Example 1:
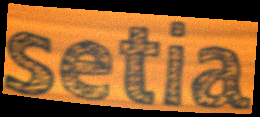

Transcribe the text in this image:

setia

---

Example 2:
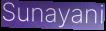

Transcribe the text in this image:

Sunayani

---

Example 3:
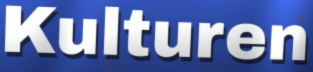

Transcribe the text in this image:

Kulturen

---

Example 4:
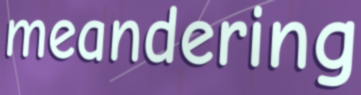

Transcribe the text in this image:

meandering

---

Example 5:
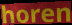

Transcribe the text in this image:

horen